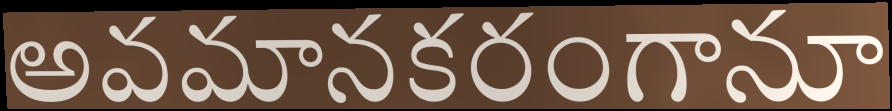
అవమానకరంగానూ